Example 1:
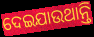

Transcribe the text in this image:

ଦେଇଯାଉଥାନ୍ତି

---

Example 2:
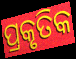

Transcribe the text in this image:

ପ୍ରକୃତିକ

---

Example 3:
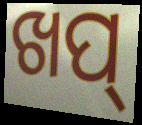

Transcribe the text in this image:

ଖପ୍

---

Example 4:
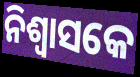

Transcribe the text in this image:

ନିଶ୍ଵାସକେ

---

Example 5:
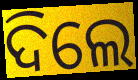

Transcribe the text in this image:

ଦିଲେ